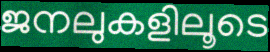
ജനലുകളിലൂടെ